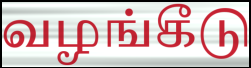
வழங்கீடு